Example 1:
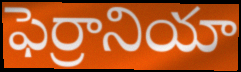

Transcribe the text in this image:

ఫెర్రానియా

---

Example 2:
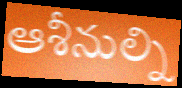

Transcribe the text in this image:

ఆశీనుల్ని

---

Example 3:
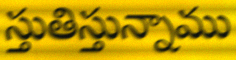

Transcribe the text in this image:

స్తుతిస్తున్నాము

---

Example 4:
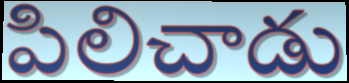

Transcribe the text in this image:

పిలిచాడు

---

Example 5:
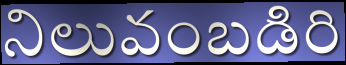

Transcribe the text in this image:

నిలువంబడిరి